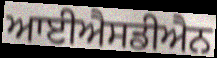
ਆਈਐਸਡੀਐਨ